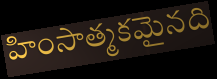
హింసాత్మకమైనది